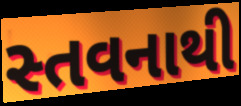
સ્તવનાથી